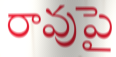
రావుపై